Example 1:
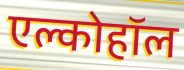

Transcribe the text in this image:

एल्कोहॉल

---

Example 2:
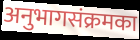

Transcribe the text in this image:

अनुभागसंक्रमका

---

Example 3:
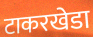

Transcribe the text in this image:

टाकरखेडा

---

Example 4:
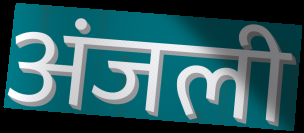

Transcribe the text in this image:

अंजली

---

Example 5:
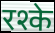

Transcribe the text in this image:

रश्के